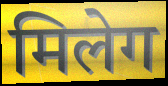
मिलेग